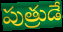
పుత్రుడే